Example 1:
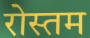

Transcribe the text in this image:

रोस्तम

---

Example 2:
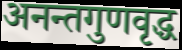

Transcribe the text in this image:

अनन्तगुणवृद्ध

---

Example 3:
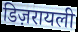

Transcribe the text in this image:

डिज़रायली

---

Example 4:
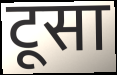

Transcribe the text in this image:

टूसा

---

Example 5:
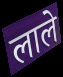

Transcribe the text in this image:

लाले